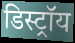
डिस्ट्रॉय